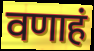
वणाहं